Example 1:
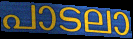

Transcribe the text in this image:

പാടലാ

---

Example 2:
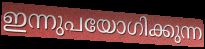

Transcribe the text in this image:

ഇന്നുപയോഗിക്കുന്ന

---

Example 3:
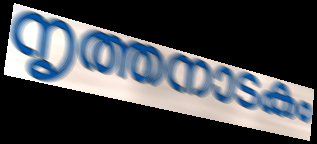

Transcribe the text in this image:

നൃത്തനാടകം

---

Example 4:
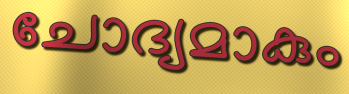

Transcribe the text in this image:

ചോദ്യമാകും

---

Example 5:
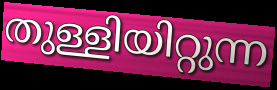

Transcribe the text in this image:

തുള്ളിയിറ്റുന്ന